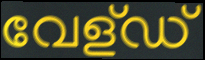
വേള്ഡ്